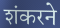
शंकरने